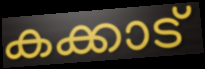
കക്കാട്